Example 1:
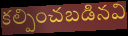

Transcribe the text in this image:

కల్పించబడినవి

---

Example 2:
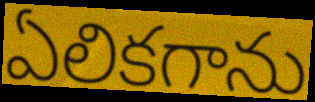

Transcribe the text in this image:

ఏలికగాను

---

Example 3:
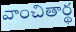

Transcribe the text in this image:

వాంచితార్థ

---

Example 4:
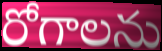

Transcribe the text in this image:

రోగాలను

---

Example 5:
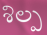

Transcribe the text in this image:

శిల్ప